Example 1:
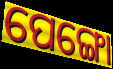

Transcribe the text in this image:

ପେଙ୍ଗୋ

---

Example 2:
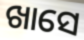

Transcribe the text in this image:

ଖାସେ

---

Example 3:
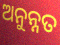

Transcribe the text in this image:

ଅନୁନ୍ନତ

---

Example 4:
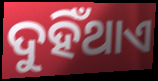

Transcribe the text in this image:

ଦୁହିଁଥାଏ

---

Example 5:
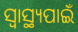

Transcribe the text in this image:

ସ୍ବାସ୍ଥ୍ୟପାଇଁ